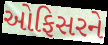
ઓફિસરને